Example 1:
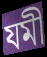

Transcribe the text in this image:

যমী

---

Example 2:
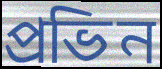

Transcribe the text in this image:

প্রভিন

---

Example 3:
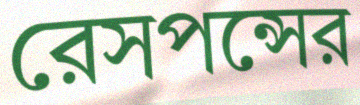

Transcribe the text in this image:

রেসপন্সের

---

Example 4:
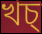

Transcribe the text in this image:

খচ্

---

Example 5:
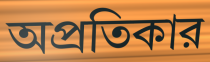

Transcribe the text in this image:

অপ্রতিকার